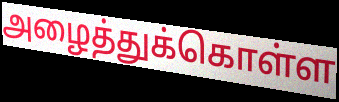
அழைத்துக்கொள்ள